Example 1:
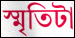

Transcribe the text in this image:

স্মৃতিটা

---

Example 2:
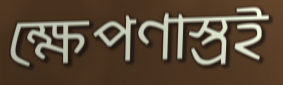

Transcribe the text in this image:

ক্ষেপণাস্ত্রই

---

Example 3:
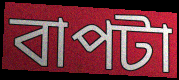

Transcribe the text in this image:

বাপটা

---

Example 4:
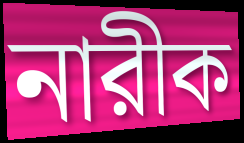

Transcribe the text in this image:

নারীক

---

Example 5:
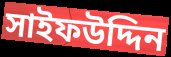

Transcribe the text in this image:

সাইফউদ্দিন